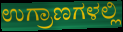
ಉಗ್ರಾಣಗಳಲ್ಲಿ